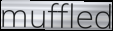
muffled